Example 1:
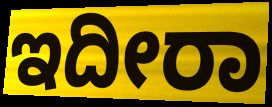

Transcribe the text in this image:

ಇದೀರಾ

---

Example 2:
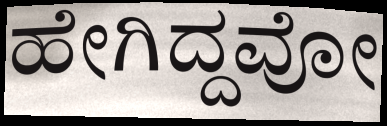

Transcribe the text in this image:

ಹೇಗಿದ್ದವೋ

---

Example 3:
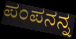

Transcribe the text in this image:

ಪಂಪನನ್ನ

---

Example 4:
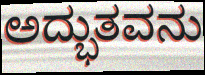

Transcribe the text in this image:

ಅದ್ಭುತವನು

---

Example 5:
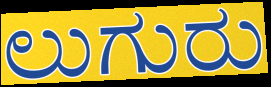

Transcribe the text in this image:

ಲುಗುರು